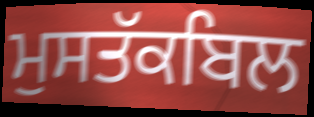
ਮੁਸਤੱਕਬਿਲ